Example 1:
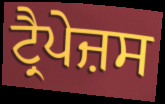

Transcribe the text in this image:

ਟ੍ਰੈਪੇਜ਼ਸ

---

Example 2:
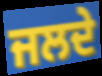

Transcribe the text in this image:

ਜਲਦੇ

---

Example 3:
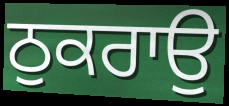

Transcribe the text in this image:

ਠੁਕਰਾਉ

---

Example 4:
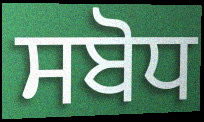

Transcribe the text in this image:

ਸਬੋਧ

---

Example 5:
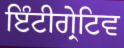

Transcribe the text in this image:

ਇੰਟੀਗ੍ਰੇਟਿਵ